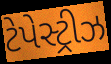
ટેપેસ્ટ્રીઝ